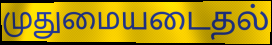
முதுமையடைதல்